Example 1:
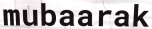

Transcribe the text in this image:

mubaarak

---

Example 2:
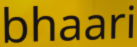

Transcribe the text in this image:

bhaari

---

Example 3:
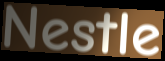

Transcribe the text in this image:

Nestle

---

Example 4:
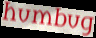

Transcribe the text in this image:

humbug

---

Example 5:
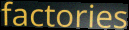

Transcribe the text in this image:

factories